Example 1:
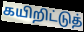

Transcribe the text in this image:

கயிறிட்டுத்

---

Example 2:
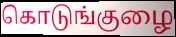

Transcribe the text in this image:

கொடுங்குழை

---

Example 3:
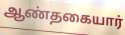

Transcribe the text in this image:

ஆண்தகையார்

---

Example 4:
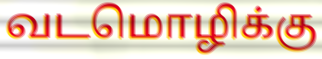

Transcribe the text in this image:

வடமொழிக்கு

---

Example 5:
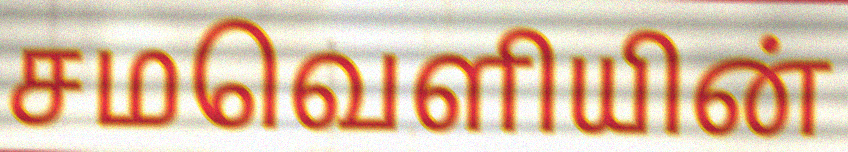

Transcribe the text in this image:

சமவெளியின்